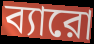
ব্যারো